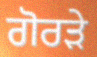
ਗੋਰੜੇ